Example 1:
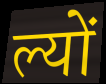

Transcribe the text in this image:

ल्यों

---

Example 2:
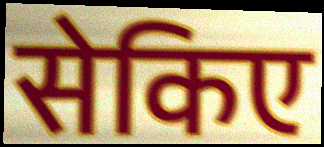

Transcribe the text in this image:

सेकिए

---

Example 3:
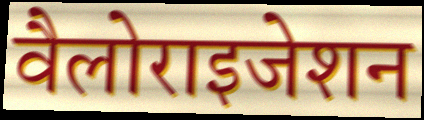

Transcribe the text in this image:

वैलोराइजेशन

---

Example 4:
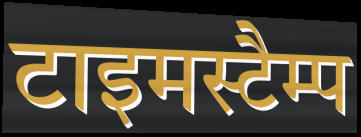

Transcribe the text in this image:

टाइमस्टैम्प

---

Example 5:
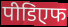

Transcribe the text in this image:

पीडिएफ